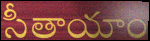
సీతాయాం